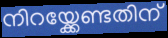
നിറയ്ക്കേണ്ടതിന്